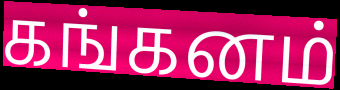
கங்கனம்